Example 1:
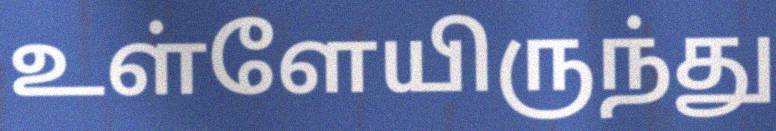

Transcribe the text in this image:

உள்ளேயிருந்து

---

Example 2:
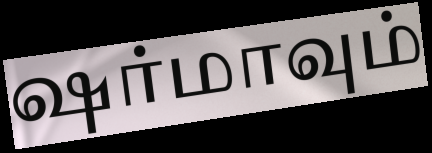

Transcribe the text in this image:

ஷர்மாவும்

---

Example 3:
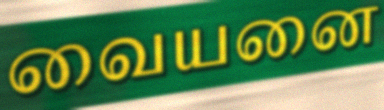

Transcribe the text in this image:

வையனை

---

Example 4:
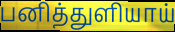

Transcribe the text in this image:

பனித்துளியாய்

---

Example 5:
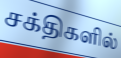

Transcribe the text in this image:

சக்திகளில்